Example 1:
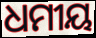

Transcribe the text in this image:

ଧମୀୟ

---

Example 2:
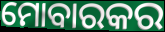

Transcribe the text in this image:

ମୋବାରକର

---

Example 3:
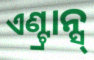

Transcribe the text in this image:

ଏଣ୍ଟ୍ରାନ୍ସ୍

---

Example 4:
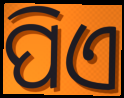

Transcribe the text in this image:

ପିଏ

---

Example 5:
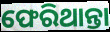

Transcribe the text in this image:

ଫେରିଥାନ୍ତା